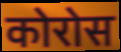
कोरोस